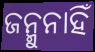
ଜନ୍ମୁନାହିଁ